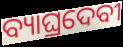
ବ୍ୟାଘ୍ରଦେବୀ